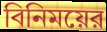
বিনিময়ের